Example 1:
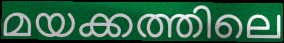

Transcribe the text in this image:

മയക്കത്തിലെ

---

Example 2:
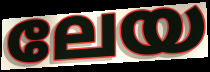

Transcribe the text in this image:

ലേയ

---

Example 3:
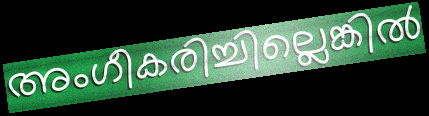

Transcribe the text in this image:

അംഗീകരിച്ചില്ലെങ്കിൽ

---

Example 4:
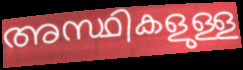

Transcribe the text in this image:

അസ്ഥികളുള്ള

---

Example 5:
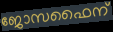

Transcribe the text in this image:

ജോസഫൈന്